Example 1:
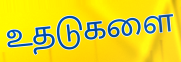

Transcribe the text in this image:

உதடுகளை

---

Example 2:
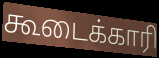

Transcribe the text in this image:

கூடைக்காரி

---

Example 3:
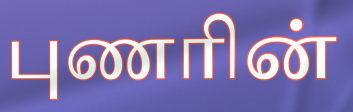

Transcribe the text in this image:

புணரின்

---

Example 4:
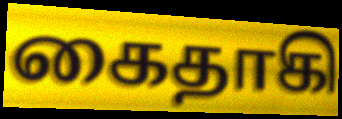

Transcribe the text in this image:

கைதாகி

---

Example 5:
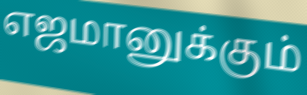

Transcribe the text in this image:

எஜமானுக்கும்